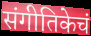
संगीतिकेचं